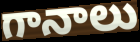
గానాలు